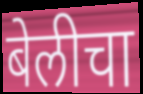
बेलीचा